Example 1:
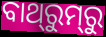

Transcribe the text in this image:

ବାଥ୍‌ରୁମ୍‌ରୁ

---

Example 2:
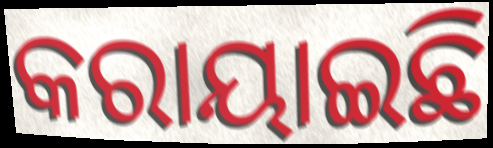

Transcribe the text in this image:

କରାୟାଇଛି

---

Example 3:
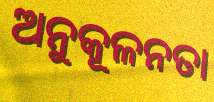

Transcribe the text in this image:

ଅନୁକୂଳନତା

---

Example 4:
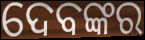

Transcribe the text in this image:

ଦେବଙ୍କର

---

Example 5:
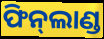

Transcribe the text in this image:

ଫିନ୍‌ଲାଣ୍ଡ